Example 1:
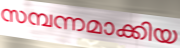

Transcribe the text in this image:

സമ്പന്നമാക്കിയ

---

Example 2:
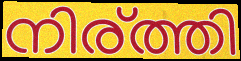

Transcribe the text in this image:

നിര്ത്തി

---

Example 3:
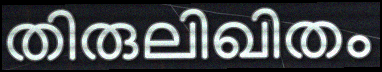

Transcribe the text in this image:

തിരുലിഖിതം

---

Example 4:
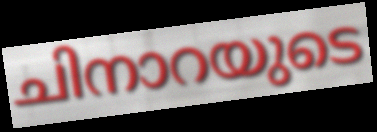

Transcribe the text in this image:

ചിനാറയുടെ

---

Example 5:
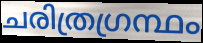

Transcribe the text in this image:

ചരിത്രഗ്രന്ഥം